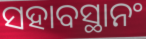
ସହାବସ୍ଥାନଂ